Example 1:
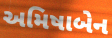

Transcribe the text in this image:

અમિષાબેન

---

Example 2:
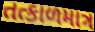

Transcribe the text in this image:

તત્કાળમાત્ર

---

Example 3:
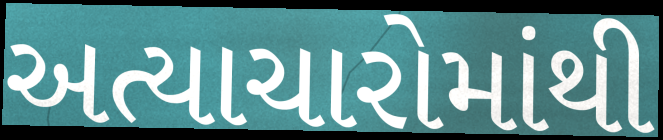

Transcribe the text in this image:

અત્યાચારોમાંથી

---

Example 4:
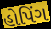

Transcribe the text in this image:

હોપિંગ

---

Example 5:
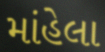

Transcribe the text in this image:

માંહેલા